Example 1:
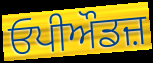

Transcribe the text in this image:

ਓਪੀਔਡਜ਼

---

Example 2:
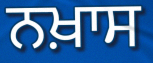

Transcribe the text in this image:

ਨਖ਼ਾਸ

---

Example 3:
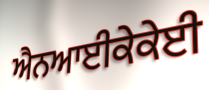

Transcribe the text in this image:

ਐਨਆਈਕੇਕੇਈ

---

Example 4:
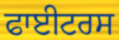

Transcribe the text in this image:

ਫਾਈਟਰਸ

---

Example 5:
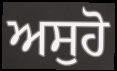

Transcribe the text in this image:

ਅਸੁਹੋ